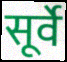
सूर्वे